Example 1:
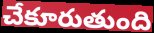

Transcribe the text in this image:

చేకూరుతుంది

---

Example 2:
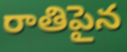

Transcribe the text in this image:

రాతిపైన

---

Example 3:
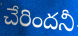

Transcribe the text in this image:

చేరిందనీ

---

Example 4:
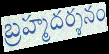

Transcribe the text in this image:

బ్రహ్మదర్శనం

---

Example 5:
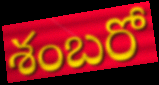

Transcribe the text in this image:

శంబరో